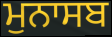
ਮੁਨਾਸਬ